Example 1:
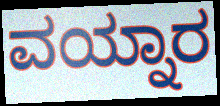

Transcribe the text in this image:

ವಯ್ನಾರ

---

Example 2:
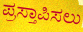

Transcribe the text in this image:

ಪ್ರಸ್ತಾಪಿಸಲು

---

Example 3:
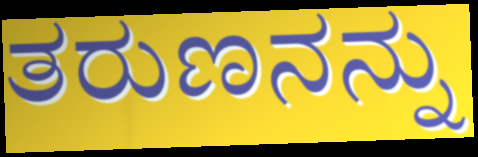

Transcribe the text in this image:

ತರುಣನನ್ನು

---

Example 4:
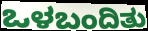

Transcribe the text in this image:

ಒಳಬಂದಿತು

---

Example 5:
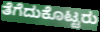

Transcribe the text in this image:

ತೆಗೆದುಕೊಟ್ಟರು